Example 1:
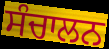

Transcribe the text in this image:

ਸੰਚਾਲਨ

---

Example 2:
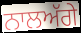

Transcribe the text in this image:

ਨਾਲਅੱਗੇ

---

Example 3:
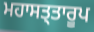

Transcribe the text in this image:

ਮਹਾਸਤ੍ਤਾਰੂਪ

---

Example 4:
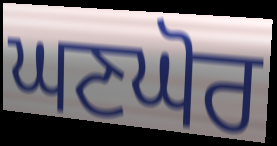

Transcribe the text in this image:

ਘਣਘੋਰ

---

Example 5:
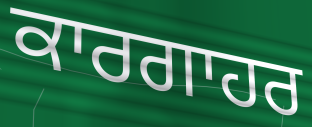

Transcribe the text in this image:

ਕਾਰਗਾਹਰ